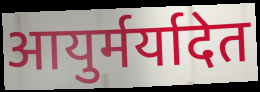
आयुर्मर्यादेत